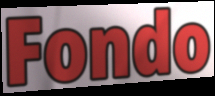
Fondo